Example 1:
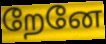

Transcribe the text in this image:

றேனே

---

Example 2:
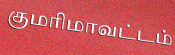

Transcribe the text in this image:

குமரிமாவட்டம்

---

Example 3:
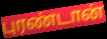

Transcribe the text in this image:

புரண்டான்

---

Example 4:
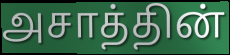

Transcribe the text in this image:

அசாத்தின்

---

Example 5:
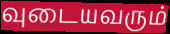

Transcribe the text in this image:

வுடையவரும்